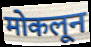
मोकलून